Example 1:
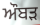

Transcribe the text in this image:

ਔਬੜ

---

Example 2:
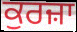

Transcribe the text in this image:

ਕੁਰਜ਼ਾ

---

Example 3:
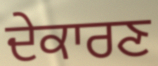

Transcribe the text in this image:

ਦੇਕਾਰਣ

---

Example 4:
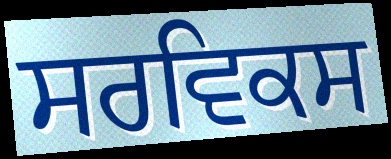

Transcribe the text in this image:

ਸਰਵਿਕਸ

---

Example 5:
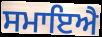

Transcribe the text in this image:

ਸਮਾਇਐ